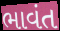
ભાવંત